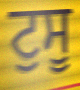
ਟੁਸੂ